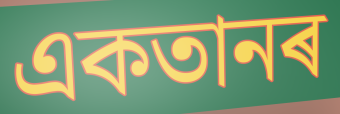
একতানৰ